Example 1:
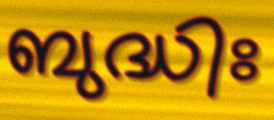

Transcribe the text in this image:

ബുദ്ധിഃ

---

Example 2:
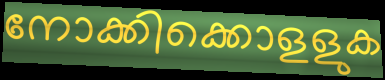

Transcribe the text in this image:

നോക്കിക്കൊളളുക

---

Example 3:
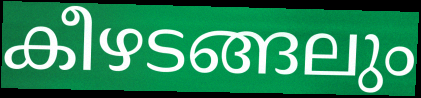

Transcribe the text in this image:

കീഴടങ്ങലും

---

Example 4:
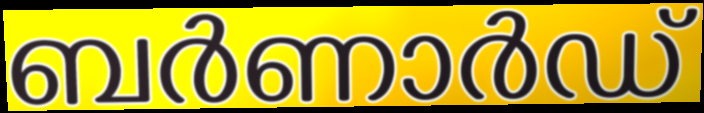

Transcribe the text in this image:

ബർണാർഡ്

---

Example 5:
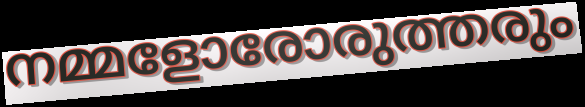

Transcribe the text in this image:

നമ്മളോരോരുത്തരും